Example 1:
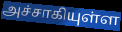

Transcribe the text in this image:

அச்சாகியுள்ள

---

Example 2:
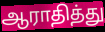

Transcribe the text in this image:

ஆராதித்து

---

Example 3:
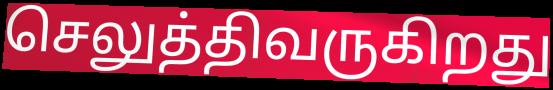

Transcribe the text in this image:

செலுத்திவருகிறது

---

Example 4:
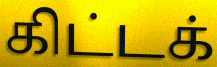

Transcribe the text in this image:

கிட்டக்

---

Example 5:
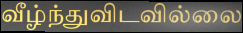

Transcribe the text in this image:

வீழ்ந்துவிடவில்லை